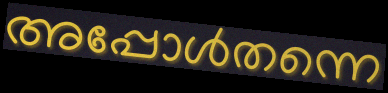
അപ്പോൾതന്നെ